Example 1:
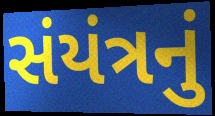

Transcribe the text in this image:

સંયંત્રનું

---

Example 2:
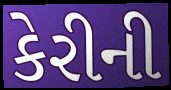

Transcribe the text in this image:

કેરીની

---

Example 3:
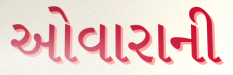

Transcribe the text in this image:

ઓવારાની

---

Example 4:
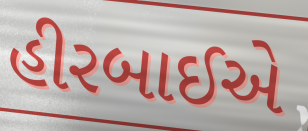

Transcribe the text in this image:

હીરબાઈએ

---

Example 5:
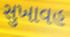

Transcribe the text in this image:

સુખાવહ